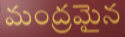
మంద్రమైన